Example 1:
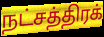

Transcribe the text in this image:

நட்சத்திரக்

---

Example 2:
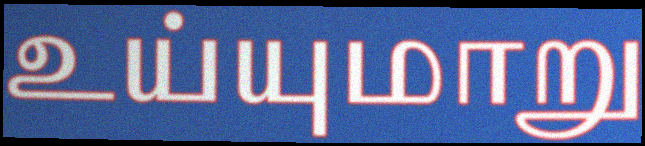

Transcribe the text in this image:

உய்யுமாறு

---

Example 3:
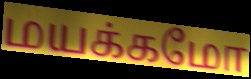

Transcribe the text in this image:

மயக்கமோ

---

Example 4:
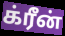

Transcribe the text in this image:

க்ரீன்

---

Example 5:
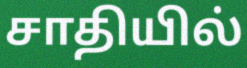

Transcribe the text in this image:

சாதியில்